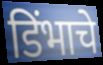
डिंभाचे